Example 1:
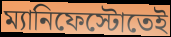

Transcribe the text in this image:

ম্যানিফেস্টোতেই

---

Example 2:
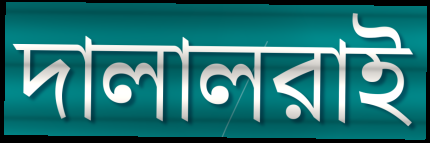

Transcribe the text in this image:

দালালরাই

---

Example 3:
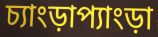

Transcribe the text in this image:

চ্যাংড়াপ্যাংড়া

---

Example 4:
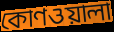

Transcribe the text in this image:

কোণওয়ালা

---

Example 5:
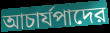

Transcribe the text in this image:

আচার্যপাদের